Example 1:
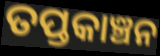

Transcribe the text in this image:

ତପ୍ତକାଞ୍ଚନ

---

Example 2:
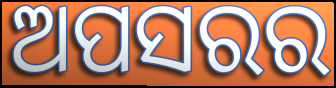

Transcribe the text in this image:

ଅପସରର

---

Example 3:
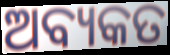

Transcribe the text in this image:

ଅବ୍ୟକତ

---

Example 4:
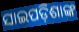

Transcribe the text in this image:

ସାଇପଡ଼ିଶାଙ୍କ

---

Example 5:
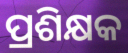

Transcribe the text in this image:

ପ୍ରଶିକ୍ଷକ